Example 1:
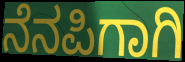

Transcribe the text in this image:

ನೆನಪಿಗಾಗಿ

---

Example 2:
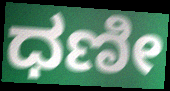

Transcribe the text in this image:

ಧಣೀ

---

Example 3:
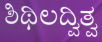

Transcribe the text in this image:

ಶಿಥಿಲದ್ವಿತ್ವ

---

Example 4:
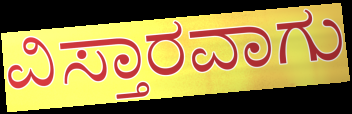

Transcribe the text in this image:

ವಿಸ್ತಾರವಾಗು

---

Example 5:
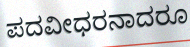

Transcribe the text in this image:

ಪದವೀಧರನಾದರೂ